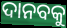
ଦାନବକୁ